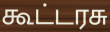
கூட்டரசு